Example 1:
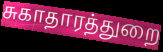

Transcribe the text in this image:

சுகாதாரத்துறை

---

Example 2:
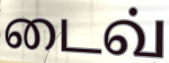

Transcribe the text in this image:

டைவ்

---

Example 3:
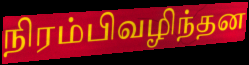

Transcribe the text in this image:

நிரம்பிவழிந்தன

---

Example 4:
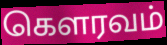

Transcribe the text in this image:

கெளரவம்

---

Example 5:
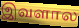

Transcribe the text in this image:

இவளால